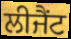
ਲੀਜੈਂਟ